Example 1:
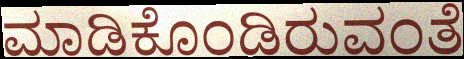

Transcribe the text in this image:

ಮಾಡಿಕೊಂಡಿರುವಂತೆ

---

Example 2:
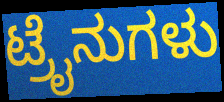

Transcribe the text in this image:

ಟ್ರೈನುಗಳು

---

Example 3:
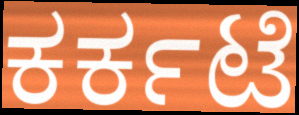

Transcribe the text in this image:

ಕರ್ಕಟೆ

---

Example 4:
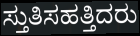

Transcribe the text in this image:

ಸ್ತುತಿಸಹತ್ತಿದರು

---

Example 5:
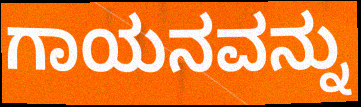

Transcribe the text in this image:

ಗಾಯನವನ್ನು